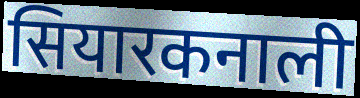
सियारकनाली